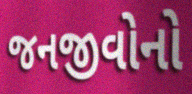
જનજીવોનો